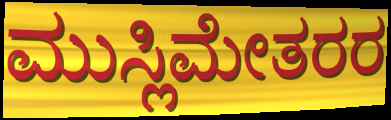
ಮುಸ್ಲಿಮೇತರರ